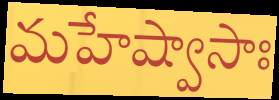
మహేష్వాసాః